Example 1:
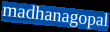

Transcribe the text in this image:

madhanagopal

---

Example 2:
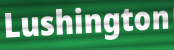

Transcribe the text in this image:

Lushington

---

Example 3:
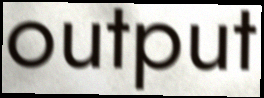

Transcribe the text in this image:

output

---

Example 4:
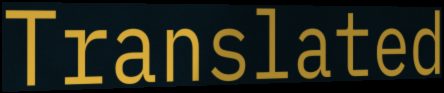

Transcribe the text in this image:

Translated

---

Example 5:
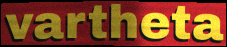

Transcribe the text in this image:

vartheta